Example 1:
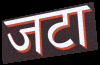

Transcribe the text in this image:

जटा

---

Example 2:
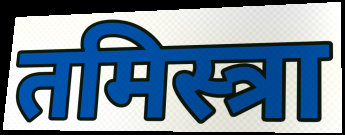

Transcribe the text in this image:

तमिस्त्रा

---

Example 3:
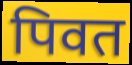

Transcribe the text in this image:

पिवत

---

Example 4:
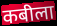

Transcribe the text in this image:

कबीला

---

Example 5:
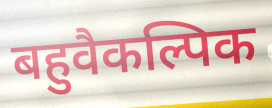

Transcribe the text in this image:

बहुवैकल्पिक